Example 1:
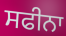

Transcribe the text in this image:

ਸਫੀਨਾ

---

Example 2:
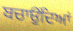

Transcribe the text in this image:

ਬਚਾਉਂਦਿਆਂ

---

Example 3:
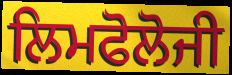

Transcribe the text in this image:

ਲਿਮਫੋਲੋਜੀ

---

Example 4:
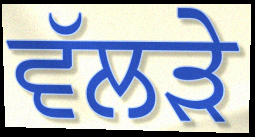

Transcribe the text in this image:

ਵੱਲੜੇ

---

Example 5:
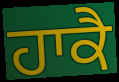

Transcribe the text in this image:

ਹਾਕੈ